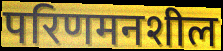
परिणमनशील